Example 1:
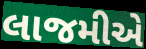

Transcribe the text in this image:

લાજમીએ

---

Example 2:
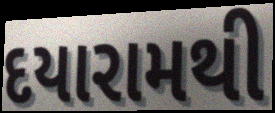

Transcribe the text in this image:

દયારામથી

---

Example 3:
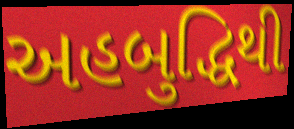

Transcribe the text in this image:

અહબુદ્ધિથી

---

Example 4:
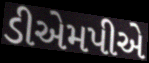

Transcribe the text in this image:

ડીએમપીએ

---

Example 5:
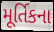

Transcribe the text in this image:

મૂર્તિકના